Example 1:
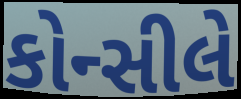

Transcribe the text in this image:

કોન્સીલે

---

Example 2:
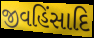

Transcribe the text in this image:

જીવહિંસાદિ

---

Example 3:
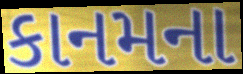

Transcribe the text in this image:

કાનમના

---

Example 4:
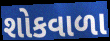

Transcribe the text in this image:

શોકવાળા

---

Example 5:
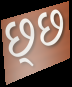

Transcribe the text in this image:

છ્છ